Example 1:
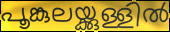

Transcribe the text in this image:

പൂങ്കുലയ്ക്കുള്ളിൽ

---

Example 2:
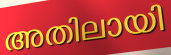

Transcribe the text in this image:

അതിലായി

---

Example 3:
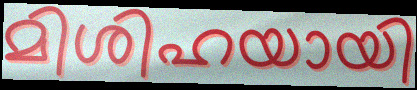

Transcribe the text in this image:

മിശിഹയായി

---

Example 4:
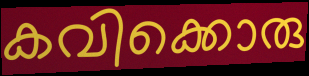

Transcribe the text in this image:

കവിക്കൊരു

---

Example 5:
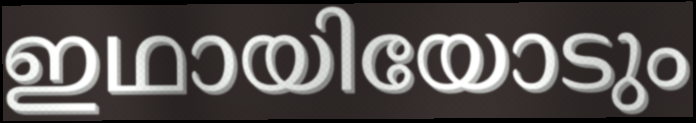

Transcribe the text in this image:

ഇഥായിയോടും